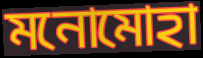
মনোমোহা